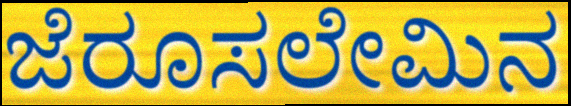
ಜೆರೂಸಲೇಮಿನ